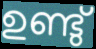
ഉണ്ടു്